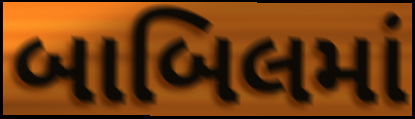
બાબિલમાં